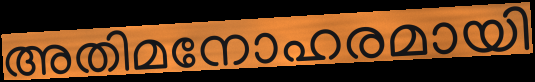
അതിമനോഹരമായി